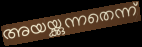
അയയ്ക്കുന്നതെന്ന്